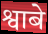
श्वाबे